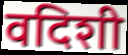
वदिशी